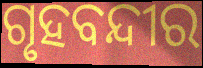
ଗୃହବନ୍ଦୀର